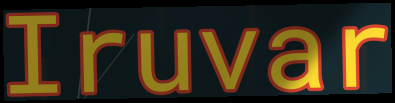
Iruvar